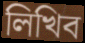
লিখিব